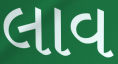
લાવ